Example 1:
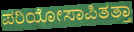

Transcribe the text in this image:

ಪರಿಯೋಸಾಪಿತತ್ತಾ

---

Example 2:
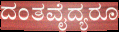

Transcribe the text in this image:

ದಂತವೈದ್ಯರೂ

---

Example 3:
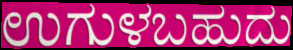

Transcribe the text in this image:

ಉಗುಳಬಹುದು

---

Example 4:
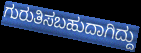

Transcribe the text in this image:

ಗುರುತಿಸಬಹುದಾಗಿದ್ದು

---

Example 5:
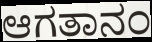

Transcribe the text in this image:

ಆಗತಾನಂ